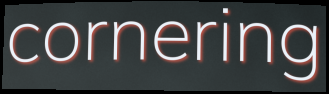
cornering